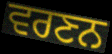
ਵਰਣਨ